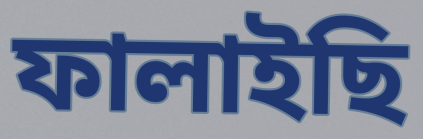
ফালাইছি